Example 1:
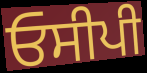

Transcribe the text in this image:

ਓਸੀਪੀ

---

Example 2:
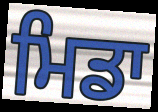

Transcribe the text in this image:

ਮਿਡਾ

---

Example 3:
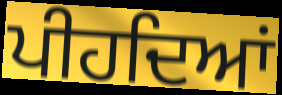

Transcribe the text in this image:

ਪੀਹਦਿਆਂ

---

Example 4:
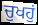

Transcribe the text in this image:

ਚੁਖਹੁਂ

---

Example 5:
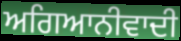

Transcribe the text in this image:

ਅਗਿਆਨੀਵਾਦੀ